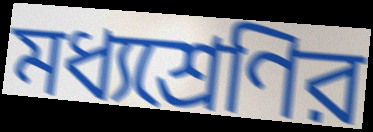
মধ্যশ্রেণির